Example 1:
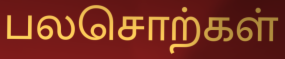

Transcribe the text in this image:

பலசொற்கள்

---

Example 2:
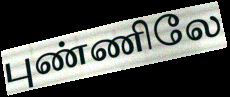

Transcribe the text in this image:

புண்ணிலே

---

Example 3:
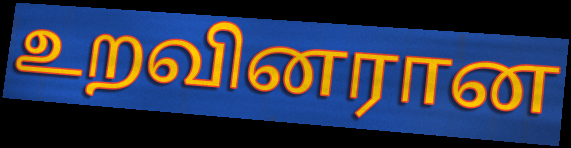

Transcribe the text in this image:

உறவினரான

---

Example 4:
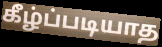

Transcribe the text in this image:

கீழ்ப்படியாத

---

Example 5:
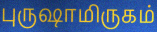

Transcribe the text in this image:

புருஷாமிருகம்